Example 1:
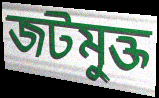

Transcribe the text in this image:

জটমুক্ত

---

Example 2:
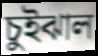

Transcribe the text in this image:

চুইঝাল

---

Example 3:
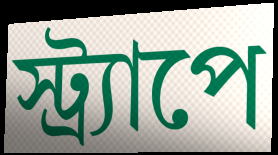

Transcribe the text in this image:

স্ট্র্যাপে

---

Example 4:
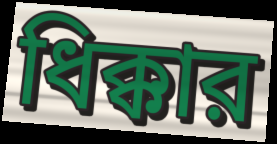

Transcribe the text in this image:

ধিক্কার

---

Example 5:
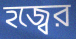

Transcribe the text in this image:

হজ্বের